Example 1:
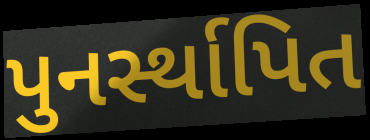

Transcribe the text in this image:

પુનર્સ્થાપિત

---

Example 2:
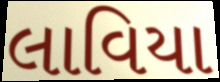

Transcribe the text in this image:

લાવિયા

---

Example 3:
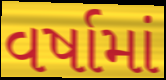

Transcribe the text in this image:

વર્ષામાં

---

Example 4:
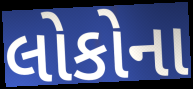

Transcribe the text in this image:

લોકોના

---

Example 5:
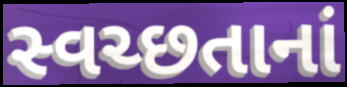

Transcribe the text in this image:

સ્વચ્છતાનાં